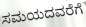
ಸಮಯದವರೆಗೆ